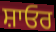
ਸ਼ਾਓਰ